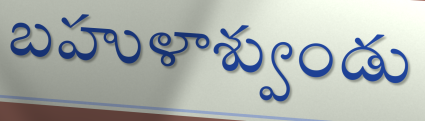
బహుళాశ్వుండు